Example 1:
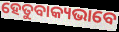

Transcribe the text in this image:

ହେତୁବାକ୍ୟଭାବେ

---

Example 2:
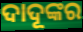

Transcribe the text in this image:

ଦାଦୂଙ୍କର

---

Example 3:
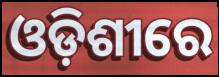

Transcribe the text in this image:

ଓଡ଼ିଶୀରେ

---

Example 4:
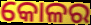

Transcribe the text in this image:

କୋଳର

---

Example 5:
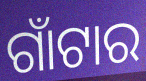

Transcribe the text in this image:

ଗାଁଟାର